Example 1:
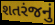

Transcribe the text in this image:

શતરંજનું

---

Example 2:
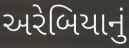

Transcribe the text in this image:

અરેબિયાનું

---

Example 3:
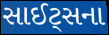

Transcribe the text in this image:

સાઈટ્સના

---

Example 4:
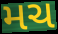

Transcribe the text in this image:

મચ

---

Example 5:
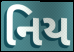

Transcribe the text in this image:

નિય